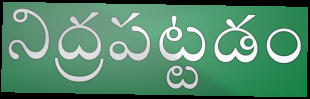
నిద్రపట్టడం